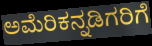
ಅಮೆರಿಕನ್ನಡಿಗರಿಗೆ